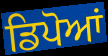
ਡਿਪੋਆਂ